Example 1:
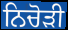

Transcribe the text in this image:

ਨਿਚੋੜੀ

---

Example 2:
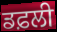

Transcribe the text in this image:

ਡਫ਼ਲੀ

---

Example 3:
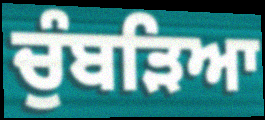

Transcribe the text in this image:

ਚੁੰਬੜਿਆ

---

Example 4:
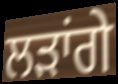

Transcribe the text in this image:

ਲੜਾਂਗੇ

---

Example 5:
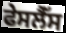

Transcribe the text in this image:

ਫੇਸਲੈੱਸ